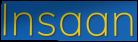
Insaan